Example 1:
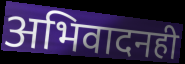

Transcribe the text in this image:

अभिवादनही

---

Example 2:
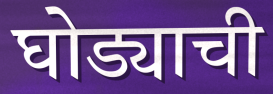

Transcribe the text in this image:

घोड्याची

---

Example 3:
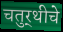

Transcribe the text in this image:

चतुर्थीचे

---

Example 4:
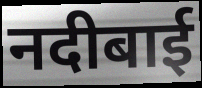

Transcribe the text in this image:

नदीबाई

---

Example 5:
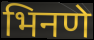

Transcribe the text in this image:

भिनणे